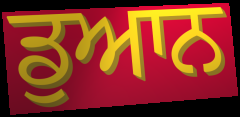
ਡੁਆਨ